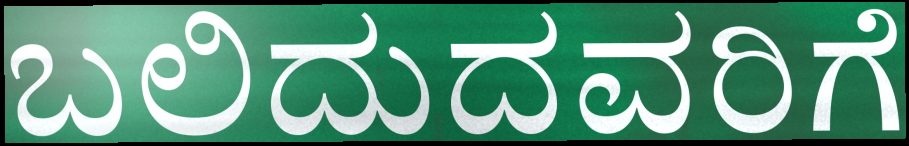
ಬಲಿದುದವರಿಗೆ